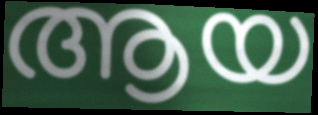
ആയ